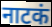
नाटकं